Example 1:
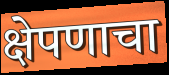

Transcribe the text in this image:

क्षेपणाचा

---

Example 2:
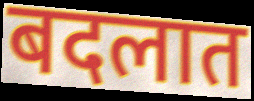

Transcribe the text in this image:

बदलात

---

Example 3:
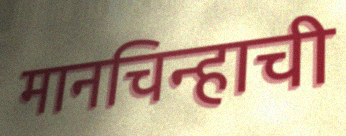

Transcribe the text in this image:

मानचिन्हाची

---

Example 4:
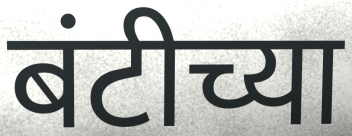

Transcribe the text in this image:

बंटीच्या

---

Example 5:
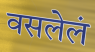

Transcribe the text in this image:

वसलेलं